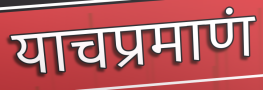
याचप्रमाणं